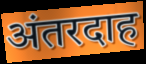
अंतरदाह